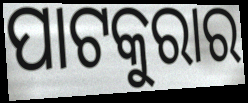
ପାଟକୁରାର